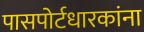
पासपोर्टधारकांना